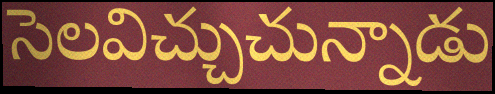
సెలవిచ్చుచున్నాడు